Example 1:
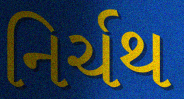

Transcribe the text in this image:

નિર્ચથ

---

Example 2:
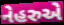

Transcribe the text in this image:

નેહરુએ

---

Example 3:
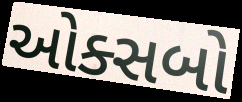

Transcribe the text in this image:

ઓક્સબો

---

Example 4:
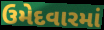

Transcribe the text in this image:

ઉમેદવારમાં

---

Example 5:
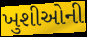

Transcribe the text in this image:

ખુશીઓની